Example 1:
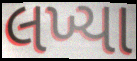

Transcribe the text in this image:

લખ્યા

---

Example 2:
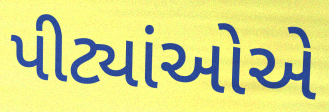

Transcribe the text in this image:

પીટ્યાંઓએ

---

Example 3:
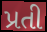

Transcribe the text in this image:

પ્રતી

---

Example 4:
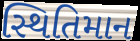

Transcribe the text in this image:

સ્થિતિમાન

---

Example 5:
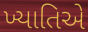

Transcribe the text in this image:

ખ્યાતિએ